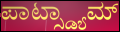
ಪಾಟ್ಸ್ಡ್ಯಾಮ್